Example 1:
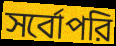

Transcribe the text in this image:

সর্বোপরি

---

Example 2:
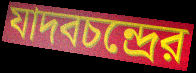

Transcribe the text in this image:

যাদবচন্দ্রের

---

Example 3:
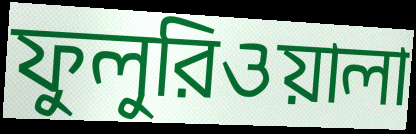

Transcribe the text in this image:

ফুলুরিওয়ালা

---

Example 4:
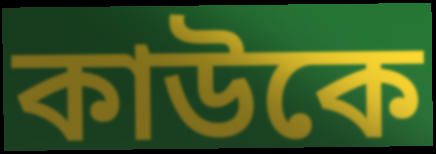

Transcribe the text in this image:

কাউকে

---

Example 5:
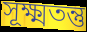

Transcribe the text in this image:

সূক্ষ্মতন্তু